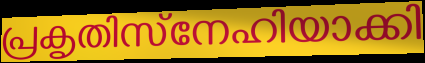
പ്രകൃതിസ്‌നേഹിയാക്കി